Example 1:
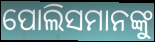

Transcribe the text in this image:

ପୋଲିସମାନଙ୍କୁ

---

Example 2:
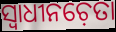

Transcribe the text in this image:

ସ୍ୱାଧୀନଚ଼େତା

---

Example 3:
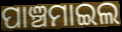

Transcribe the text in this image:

ପାଞ୍ଚମାଇଲ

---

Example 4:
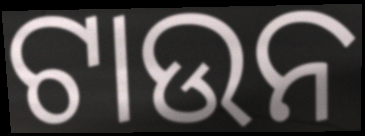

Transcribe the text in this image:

ଟାଉନ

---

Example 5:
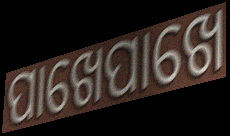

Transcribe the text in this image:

ପାଖେପାଖେ